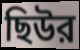
ছিউর